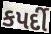
કપર્દી